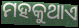
ମହକୁଥାଏ